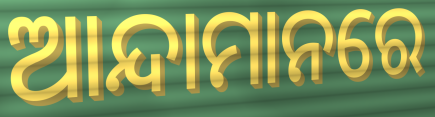
ଆନ୍ଦାମାନରେ